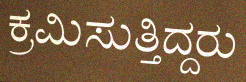
ಕ್ರಮಿಸುತ್ತಿದ್ದರು